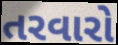
તરવારો